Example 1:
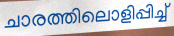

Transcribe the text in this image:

ചാരത്തിലൊളിപ്പിച്ച്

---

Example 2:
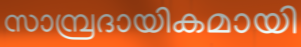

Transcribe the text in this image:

സാമ്പ്രദായികമായി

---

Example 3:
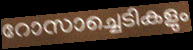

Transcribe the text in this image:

റോസാച്ചെടികളും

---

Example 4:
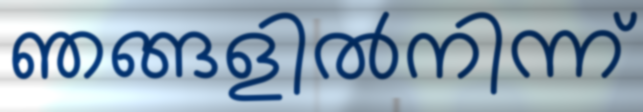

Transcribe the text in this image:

ഞങ്ങളിൽനിന്ന്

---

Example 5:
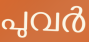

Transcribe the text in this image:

പുവർ